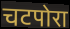
चटपोरा